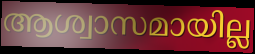
ആശ്വാസമായില്ല